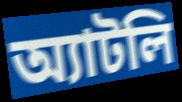
অ্যাটলি